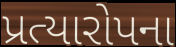
પ્રત્યારોપના